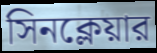
সিনক্লেয়ার